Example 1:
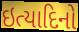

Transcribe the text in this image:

ઇત્યાદિનો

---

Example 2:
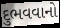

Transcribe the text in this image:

દુભવવાનો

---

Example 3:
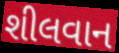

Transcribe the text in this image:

શીલવાન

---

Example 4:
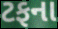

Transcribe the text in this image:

ટફના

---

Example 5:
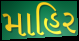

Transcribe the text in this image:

માહિર